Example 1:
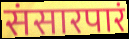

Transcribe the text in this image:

संसारपारं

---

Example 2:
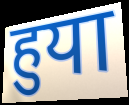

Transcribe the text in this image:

हुया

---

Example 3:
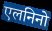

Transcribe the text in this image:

एलनिनो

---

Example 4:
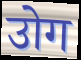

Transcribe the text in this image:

उोग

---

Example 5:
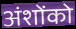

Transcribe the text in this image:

अंशोंको